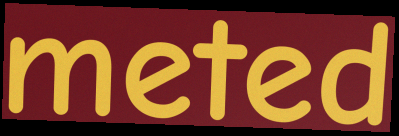
meted